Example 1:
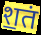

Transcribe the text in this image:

श॒तं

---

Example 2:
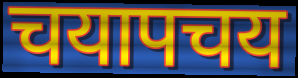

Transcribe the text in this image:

चयापचय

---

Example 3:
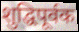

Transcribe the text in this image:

शुद्धिपूर्वक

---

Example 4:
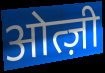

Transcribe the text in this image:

ओत्ज़ी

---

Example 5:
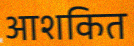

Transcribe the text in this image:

आशकित